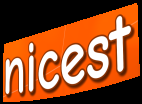
nicest